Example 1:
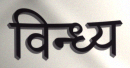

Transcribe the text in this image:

विन्ध्य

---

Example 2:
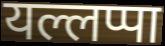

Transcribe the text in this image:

यल्लप्पा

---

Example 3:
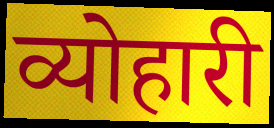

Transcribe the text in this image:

व्योहारी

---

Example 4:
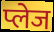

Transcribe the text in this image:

प्‍लेज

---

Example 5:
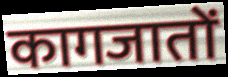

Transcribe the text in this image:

कागजातों